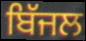
ਬਿੱਜਲ